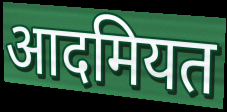
आदमियत